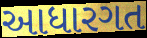
આધારગત